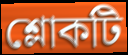
শ্লোকটি